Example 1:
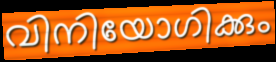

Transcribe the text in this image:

വിനിയോഗിക്കും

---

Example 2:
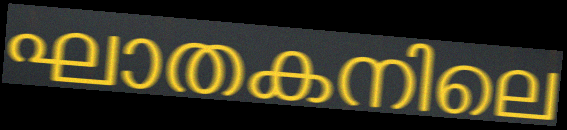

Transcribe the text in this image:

ഘാതകനിലെ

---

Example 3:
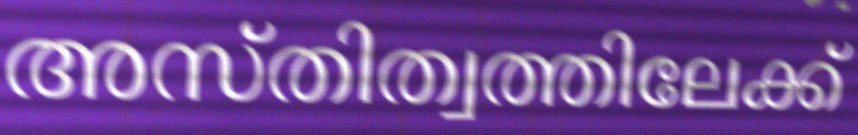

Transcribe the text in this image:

അസ്തിത്വത്തിലേക്ക്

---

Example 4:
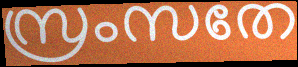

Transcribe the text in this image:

സ്രംസതേ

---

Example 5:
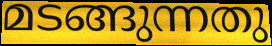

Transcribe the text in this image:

മടങ്ങുന്നതു